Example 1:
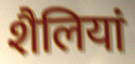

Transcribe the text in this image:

शैलियां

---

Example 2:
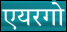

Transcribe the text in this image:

एयरगो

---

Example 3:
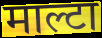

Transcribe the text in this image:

माल्टा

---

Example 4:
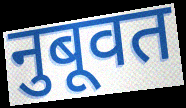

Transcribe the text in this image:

नुबूवत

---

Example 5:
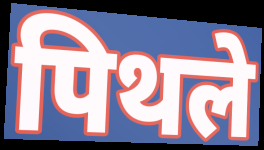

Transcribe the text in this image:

पिथले